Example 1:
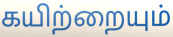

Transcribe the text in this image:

கயிற்றையும்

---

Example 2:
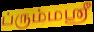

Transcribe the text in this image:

ப்ரும்மஸ்ரீ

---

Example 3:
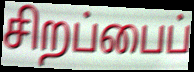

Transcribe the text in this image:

சிறப்பைப்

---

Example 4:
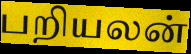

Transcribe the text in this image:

பறியலன்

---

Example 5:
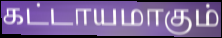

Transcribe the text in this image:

கட்டாயமாகும்